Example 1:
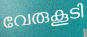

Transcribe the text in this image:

വേരുകൂടി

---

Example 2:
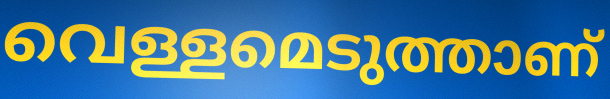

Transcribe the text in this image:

വെള്ളമെടുത്താണ്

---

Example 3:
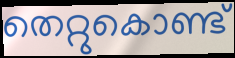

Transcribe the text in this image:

തെറ്റുകൊണ്ട്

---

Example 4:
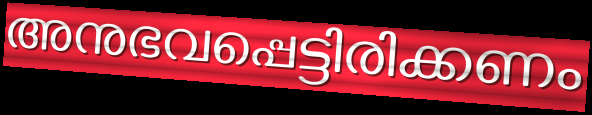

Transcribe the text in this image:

അനുഭവപ്പെട്ടിരിക്കണം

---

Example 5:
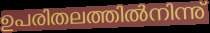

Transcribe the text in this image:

ഉപരിതലത്തിൽനിന്നു്